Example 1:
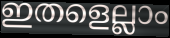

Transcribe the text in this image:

ഇതളെല്ലാം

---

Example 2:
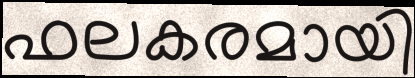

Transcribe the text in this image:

ഫലകരമായി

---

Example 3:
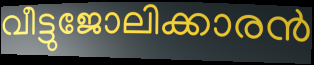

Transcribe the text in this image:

വീട്ടുജോലിക്കാരൻ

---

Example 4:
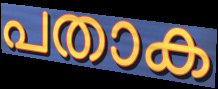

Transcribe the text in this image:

പതാക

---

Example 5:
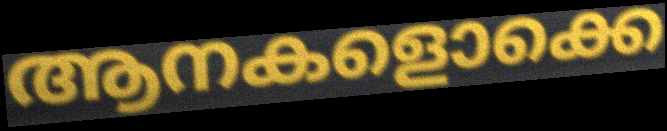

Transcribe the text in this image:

ആനകളൊക്കെ